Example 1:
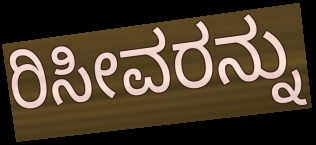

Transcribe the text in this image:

ರಿಸೀವರನ್ನು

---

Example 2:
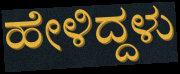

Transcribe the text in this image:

ಹೇಳಿದ್ದಳು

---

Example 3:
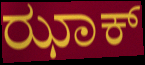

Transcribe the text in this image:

ಝಾಕ್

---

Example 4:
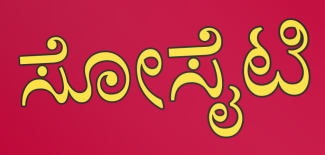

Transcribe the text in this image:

ಸೋಸೈಟಿ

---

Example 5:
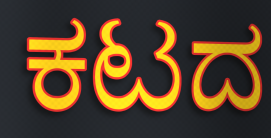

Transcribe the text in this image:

ಕಟದ